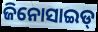
ଜିନୋସାଇଡ୍